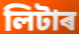
লিটাৰ